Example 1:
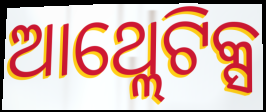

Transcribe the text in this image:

ଆଥ୍ଲେଟିକ୍ସ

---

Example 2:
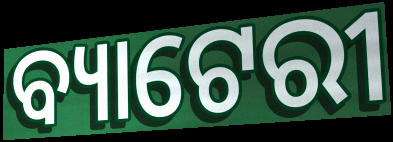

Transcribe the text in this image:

ବ୍ୟାଟେରୀ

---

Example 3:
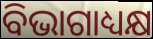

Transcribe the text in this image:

ବିଭାଗାଧ୍ୟକ୍ଷ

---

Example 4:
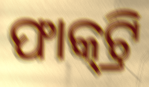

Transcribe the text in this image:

ଫାକ୍‍ଟ୍ରି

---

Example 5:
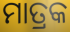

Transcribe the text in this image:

ମାତ୍ରକ